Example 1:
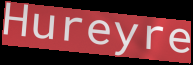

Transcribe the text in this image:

Hureyre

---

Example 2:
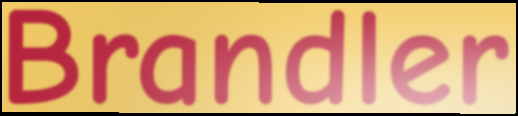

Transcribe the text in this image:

Brandler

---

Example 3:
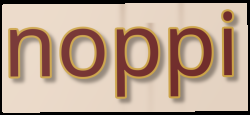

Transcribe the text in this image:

noppi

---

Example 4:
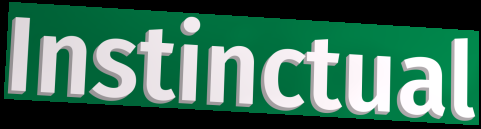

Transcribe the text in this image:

Instinctual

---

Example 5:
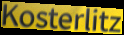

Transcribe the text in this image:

Kosterlitz